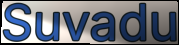
Suvadu